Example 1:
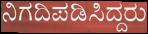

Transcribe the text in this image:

ನಿಗದಿಪಡಿಸಿದ್ದರು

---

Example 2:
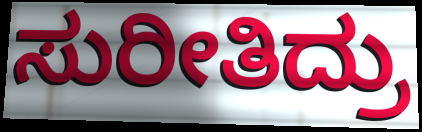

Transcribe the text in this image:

ಸುರೀತಿದ್ರು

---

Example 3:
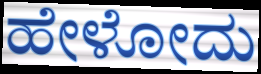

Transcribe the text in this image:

ಹೇಳೋದು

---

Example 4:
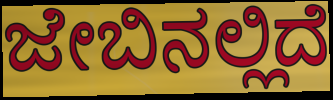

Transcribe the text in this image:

ಜೇಬಿನಲ್ಲಿದೆ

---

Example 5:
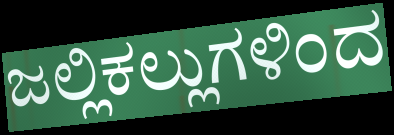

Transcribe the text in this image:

ಜಲ್ಲಿಕಲ್ಲುಗಳಿಂದ